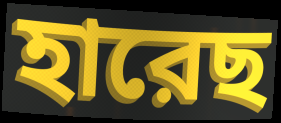
হারেছ